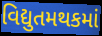
વિદ્યુતમથકમાં